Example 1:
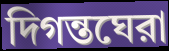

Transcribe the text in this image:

দিগন্তঘেরা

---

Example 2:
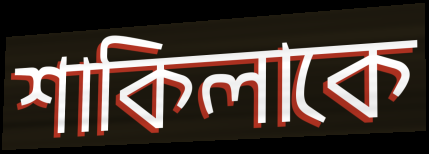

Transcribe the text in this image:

শাকিলাকে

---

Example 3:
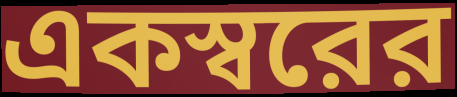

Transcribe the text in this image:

একস্বরের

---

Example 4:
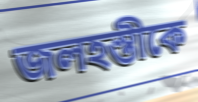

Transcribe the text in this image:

জলহস্তীকে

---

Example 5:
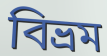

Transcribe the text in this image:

বিভ্রম